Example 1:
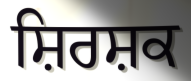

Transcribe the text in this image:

ਸ਼ਿਰਸ਼ਕ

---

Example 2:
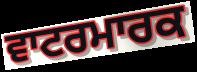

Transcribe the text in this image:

ਵਾਟਰਮਾਰਕ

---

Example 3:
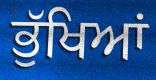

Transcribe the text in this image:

ਭੁੱਖਿਆਂ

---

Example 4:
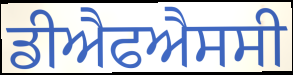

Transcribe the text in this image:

ਡੀਐਫਐਸਸੀ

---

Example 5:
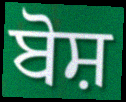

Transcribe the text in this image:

ਬੋਸ਼